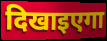
दिखाइएगा